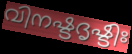
വിനഷ്ടദൃഷ്ടിഃ